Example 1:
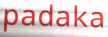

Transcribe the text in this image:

padaka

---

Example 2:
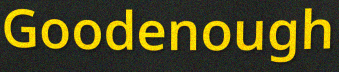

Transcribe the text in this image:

Goodenough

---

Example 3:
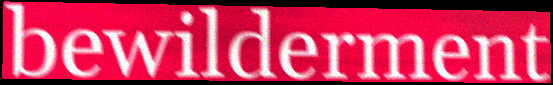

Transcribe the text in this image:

bewilderment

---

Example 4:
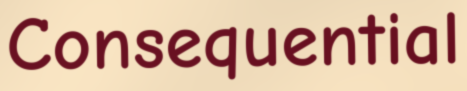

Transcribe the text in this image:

Consequential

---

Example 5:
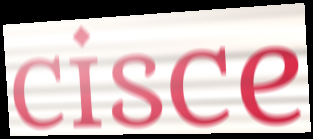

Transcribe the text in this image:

cisce